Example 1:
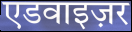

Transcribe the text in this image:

एडवाइज़र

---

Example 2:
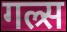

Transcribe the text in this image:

गल्र्स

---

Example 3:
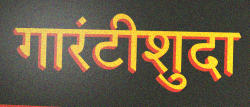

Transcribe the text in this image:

गारंटीशुदा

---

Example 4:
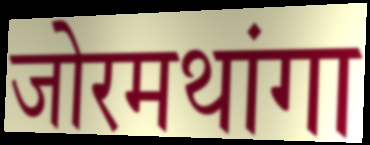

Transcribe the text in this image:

जोरमथांगा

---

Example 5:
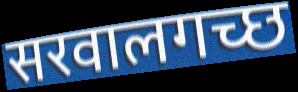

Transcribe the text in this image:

सरवालगच्छ